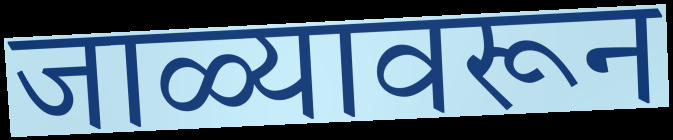
जाळ्यावरून